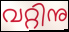
വറ്റിനു